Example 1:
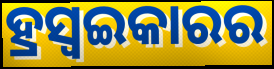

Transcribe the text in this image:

ହ୍ରସ୍ୱଇକାରର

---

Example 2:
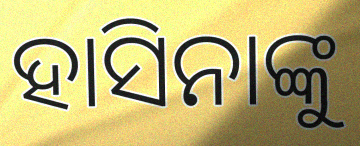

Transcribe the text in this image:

ହାସିନାଙ୍କୁ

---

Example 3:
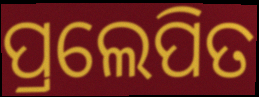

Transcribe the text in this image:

ପ୍ରଲେପିତ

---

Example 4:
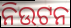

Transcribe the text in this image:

ନିଉଟନ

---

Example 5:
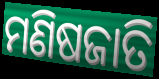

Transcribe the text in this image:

ମଣିଷଜାତି